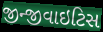
જીન્જીવાઇટિસ